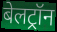
बेलट्रॉन